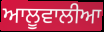
ਆਲੂਵਾਲੀਆ